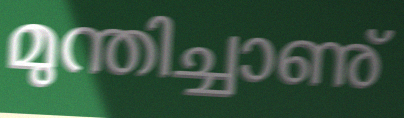
മുന്തിച്ചാണു്